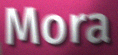
Mora